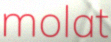
molat